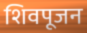
शिवपूजन